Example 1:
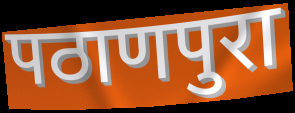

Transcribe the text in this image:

पठाणपुरा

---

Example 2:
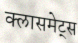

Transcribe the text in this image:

क्लासमेट्स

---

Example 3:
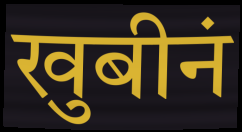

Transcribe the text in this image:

खुबीनं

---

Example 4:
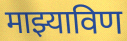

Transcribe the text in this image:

माझ्याविण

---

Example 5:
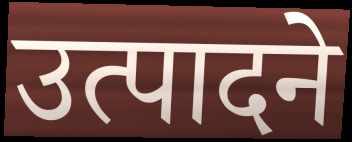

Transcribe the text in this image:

उत्पादने